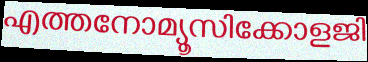
എത്തനോമ്യൂസിക്കോളജി